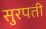
सुरपती